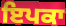
ਇਪਕਾ